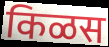
किळस